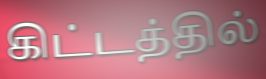
கிட்டத்தில்